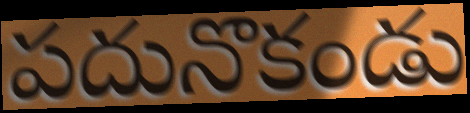
పదునొకండు